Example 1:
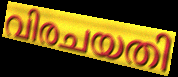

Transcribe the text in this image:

വിരചയതി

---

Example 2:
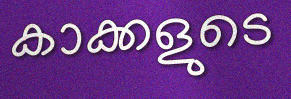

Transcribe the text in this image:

കാക്കളുടെ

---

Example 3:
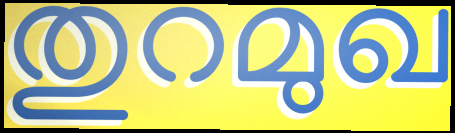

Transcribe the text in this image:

തുറമുഖ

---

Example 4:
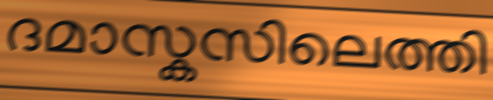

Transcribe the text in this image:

ദമാസ്കസിലെത്തി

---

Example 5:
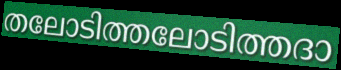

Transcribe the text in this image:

തലോടിത്തലോടിത്തദാ